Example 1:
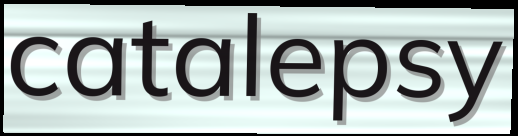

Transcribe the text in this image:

catalepsy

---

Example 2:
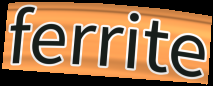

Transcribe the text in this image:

ferrite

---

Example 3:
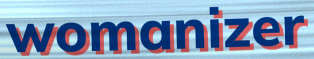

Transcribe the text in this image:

womanizer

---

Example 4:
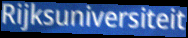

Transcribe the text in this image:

Rijksuniversiteit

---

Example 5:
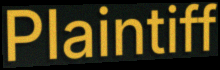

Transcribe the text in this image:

Plaintiff